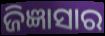
ଜିଜ୍ଞାସାର